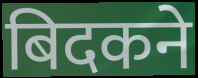
बिदकने